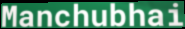
Manchubhai